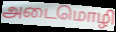
அடைமொழி